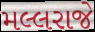
મલ્લરાજે